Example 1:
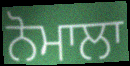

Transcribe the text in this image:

ਨੋਮਾਲਾ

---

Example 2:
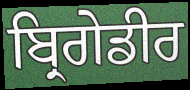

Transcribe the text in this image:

ਬ੍ਰਿਗੇਡੀਰ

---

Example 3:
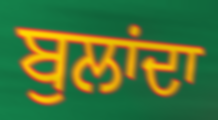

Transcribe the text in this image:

ਬੁਲਾਂਦਾ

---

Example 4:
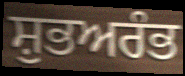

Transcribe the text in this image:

ਸ਼ੁਭਅਰੰਭ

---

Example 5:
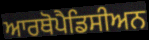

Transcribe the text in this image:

ਆਰਥੋਪੈਡਿਸੀਅਨ